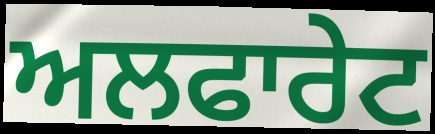
ਅਲਫਾਰੇਟ